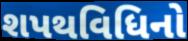
શપથવિધિનો